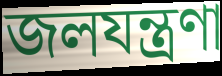
জলযন্ত্রণা